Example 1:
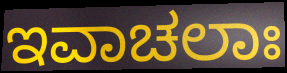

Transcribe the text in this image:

ಇವಾಚಲಾಃ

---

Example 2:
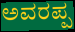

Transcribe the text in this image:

ಅವರಪ್ಪ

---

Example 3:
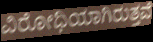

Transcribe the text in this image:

ವಿರೋಧಿಯಾಗಿರುತ್ತವೆ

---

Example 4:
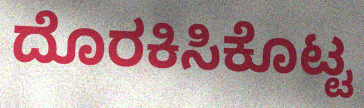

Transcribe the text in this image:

ದೊರಕಿಸಿಕೊಟ್ಟ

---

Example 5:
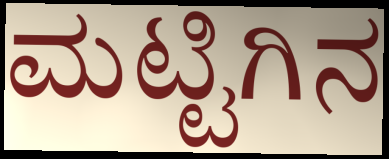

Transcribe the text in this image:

ಮಟ್ಟಿಗಿನ